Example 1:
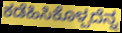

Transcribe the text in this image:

ಕಡೆಹಿಸಿಕೊಳ್ಪದೆನ್ನ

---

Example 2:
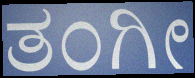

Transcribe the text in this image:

ತಂಗೀ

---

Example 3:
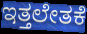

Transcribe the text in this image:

ಇತ್ತಲೇತಕೆ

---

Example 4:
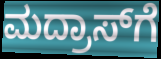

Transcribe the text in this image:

ಮದ್ರಾಸ್‍ಗೆ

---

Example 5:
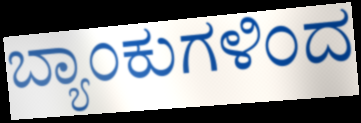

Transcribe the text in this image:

ಬ್ಯಾಂಕುಗಳಿಂದ